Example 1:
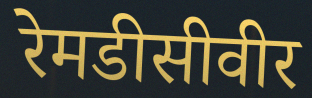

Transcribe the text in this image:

रेमडीसीवीर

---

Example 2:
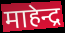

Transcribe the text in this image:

माहेन्द्र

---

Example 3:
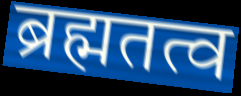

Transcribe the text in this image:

ब्रह्मतत्व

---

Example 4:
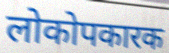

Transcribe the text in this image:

लोकोपकारक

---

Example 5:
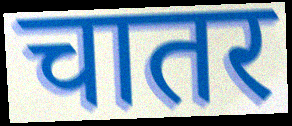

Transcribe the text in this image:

चातर